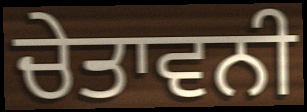
ਚੇਤਾਵਨੀ